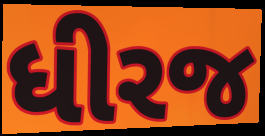
ધીરજ